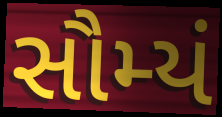
સૌમ્યં